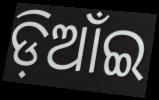
ଡ଼ିଆଁଇ